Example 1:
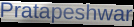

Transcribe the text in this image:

Pratapeshwar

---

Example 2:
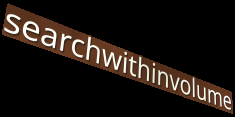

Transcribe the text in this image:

searchwithinvolume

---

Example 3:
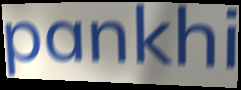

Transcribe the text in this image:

pankhi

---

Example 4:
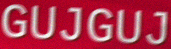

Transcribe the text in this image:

GUJGUJ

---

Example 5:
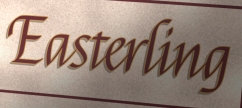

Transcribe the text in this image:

Easterling